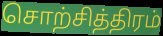
சொற்சித்திரம்